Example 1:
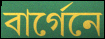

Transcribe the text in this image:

বার্গেনে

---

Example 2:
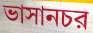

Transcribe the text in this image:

ভাসানচর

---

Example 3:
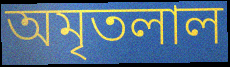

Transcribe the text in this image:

অমৃতলাল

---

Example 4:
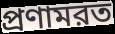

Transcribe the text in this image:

প্রণামরত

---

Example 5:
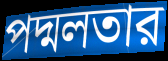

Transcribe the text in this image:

পদ্মলতার